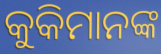
କୁକିମାନଙ୍କ